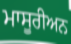
ਮਾਸੂਰੀਅਨ